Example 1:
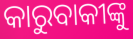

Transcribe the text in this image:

କାରୁବାକୀଙ୍କୁ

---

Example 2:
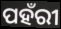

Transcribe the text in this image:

ପହଁରୀ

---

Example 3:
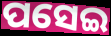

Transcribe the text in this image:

ପସେଇ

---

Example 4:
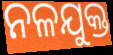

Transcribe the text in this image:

ନଳଯୁକ୍ତ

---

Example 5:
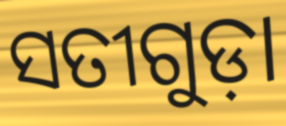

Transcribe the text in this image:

ସତୀଗୁଡ଼ା